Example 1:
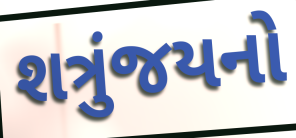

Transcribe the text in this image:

શત્રુંજયનો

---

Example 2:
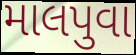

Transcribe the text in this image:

માલપુવા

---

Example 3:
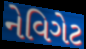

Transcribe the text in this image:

નેવિગેટ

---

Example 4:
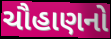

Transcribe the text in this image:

ચૌહાણનો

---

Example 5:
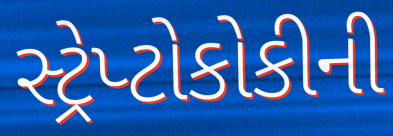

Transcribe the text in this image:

સ્ટ્રેપ્ટોકોકીની